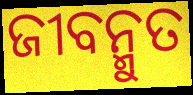
ଜୀବନ୍ମୁତ